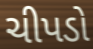
ચીપડો